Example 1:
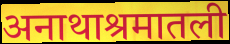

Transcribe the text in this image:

अनाथाश्रमातली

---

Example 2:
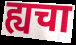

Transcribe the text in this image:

ह्यचा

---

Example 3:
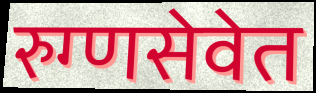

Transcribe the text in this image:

रुग्णसेवेत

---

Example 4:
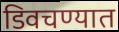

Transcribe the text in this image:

डिवचण्यात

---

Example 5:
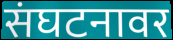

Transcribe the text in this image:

संघटनावर